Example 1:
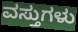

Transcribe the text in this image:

ವಸ್ತುಗಳು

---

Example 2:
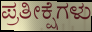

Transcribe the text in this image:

ಪ್ರತೀಕ್ಷೆಗಳು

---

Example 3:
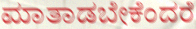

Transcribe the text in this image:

ಮಾತಾಡಬೇಕೆಂದರೆ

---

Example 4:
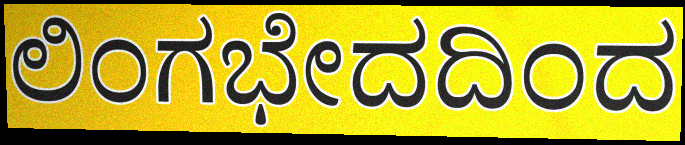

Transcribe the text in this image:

ಲಿಂಗಭೇದದಿಂದ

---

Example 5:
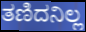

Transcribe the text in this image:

ತಣಿದನಿಲ್ಲ